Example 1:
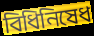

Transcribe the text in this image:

বিধিনিষেধ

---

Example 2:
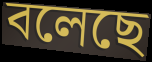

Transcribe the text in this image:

বলেছে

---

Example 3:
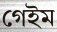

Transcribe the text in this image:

গেইম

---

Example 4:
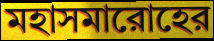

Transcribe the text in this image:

মহাসমারোহের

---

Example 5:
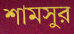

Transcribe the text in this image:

শামসুর